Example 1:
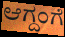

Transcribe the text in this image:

ಆಗ್ದಂಗೆ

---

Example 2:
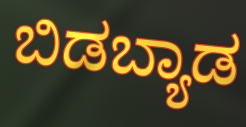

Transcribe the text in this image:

ಬಿಡಬ್ಯಾಡ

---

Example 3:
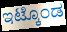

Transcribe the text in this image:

ಇಟ್ಕೊಂಡ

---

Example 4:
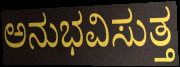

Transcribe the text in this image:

ಅನುಭವಿಸುತ್ತ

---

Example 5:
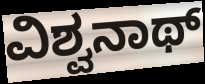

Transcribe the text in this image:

ವಿಶ್ವನಾಥ್